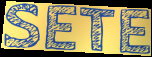
SETE